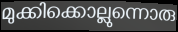
മുക്കിക്കൊല്ലുന്നൊരു